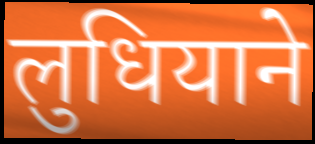
लुधियाने